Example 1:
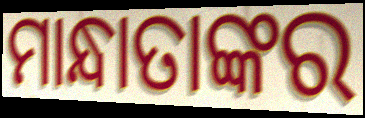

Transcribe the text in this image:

ମାନ୍ଧାତାଙ୍କର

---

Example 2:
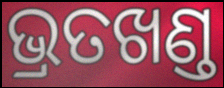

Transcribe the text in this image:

ଭ୍ରତଖଣ୍ଡ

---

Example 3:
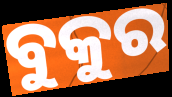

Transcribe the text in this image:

ବୁକୁର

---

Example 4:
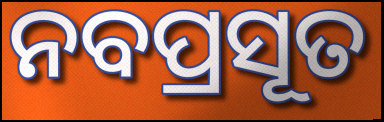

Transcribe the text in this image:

ନବପ୍ରସୂତ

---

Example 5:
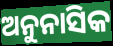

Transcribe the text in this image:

ଅନୁନାସିକ